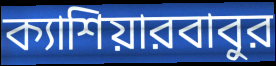
ক্যাশিয়ারবাবুর